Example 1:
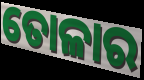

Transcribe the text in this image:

ତୋଳାର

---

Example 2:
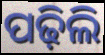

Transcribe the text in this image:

ପଢ଼ିଲି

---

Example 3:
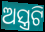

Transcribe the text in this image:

ଅସ୍ତ୍ରଟି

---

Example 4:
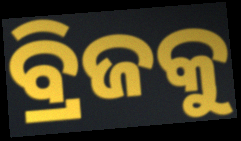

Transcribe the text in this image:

ବ୍ରିଜକୁ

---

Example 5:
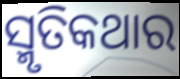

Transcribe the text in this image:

ସ୍ମୃତିକଥାର